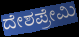
ದೇಶಪ್ರೇಮಿ